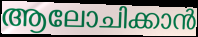
ആലോചിക്കാൻ